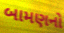
બામણનો